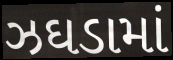
ઝઘડામાં